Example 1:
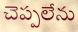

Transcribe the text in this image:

చెప్పలేను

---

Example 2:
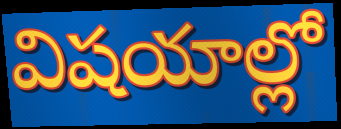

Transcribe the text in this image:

విషయాల్లో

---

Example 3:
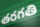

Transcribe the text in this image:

తరగతి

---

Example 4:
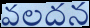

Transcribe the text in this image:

వలదన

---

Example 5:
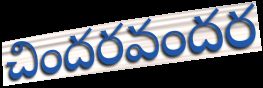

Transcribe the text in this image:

చిందరవందర